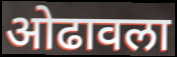
ओढावला